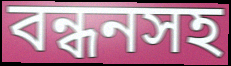
বন্ধনসহ